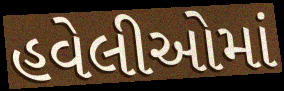
હવેલીઓમાં